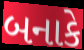
બનાકે